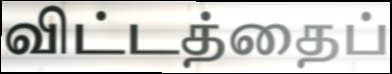
விட்டத்தைப்